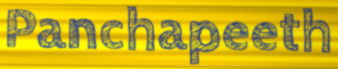
Panchapeeth